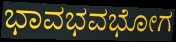
ಭಾವಭವಭೋಗ